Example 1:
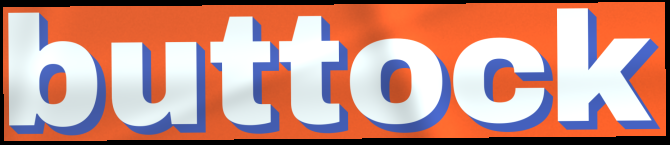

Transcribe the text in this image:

buttock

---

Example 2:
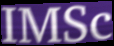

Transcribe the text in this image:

IMSc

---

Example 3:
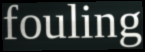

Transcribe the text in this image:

fouling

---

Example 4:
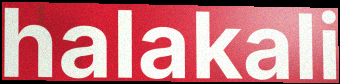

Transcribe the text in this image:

halakali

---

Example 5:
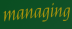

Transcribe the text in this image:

managing